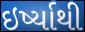
ઇર્ષ્યાથી